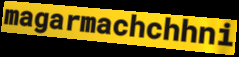
magarmachchhni